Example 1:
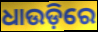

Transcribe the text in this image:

ଧାଉଡ଼ିରେ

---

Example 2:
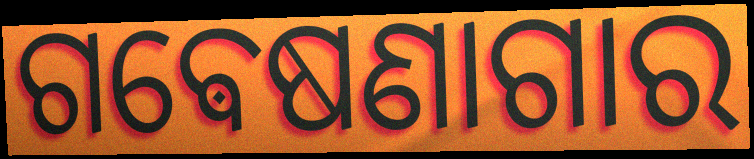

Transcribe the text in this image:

ଗଵେଷଣାଗାର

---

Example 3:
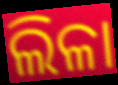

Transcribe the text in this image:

ଲିଳା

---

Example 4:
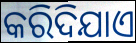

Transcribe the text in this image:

କରିଦିଯାଏ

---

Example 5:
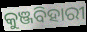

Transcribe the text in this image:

କୁଞ୍ଜବିହାରୀ